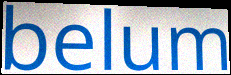
belum